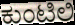
ಕುಂಟಿಲಿ